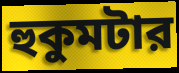
হুকুমটার